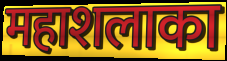
महाशलाका